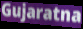
Gujaratna